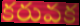
కరువక